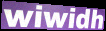
wiwidh